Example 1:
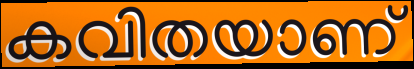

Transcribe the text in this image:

കവിതയാണ്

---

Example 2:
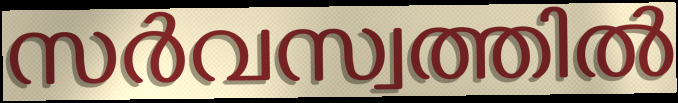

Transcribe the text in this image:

സർവസ്വത്തിൽ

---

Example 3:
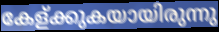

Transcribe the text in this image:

കേള്ക്കുകയായിരുന്നു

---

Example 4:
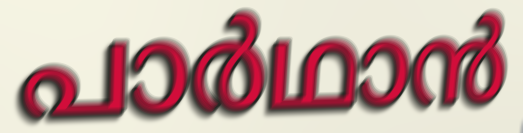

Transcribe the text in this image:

പാർഥാൻ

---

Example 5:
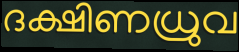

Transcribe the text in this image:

ദക്ഷിണധ്രുവ